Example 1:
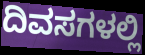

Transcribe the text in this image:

ದಿವಸಗಳಲ್ಲಿ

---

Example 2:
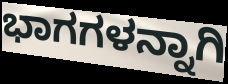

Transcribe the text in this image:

ಭಾಗಗಳನ್ನಾಗಿ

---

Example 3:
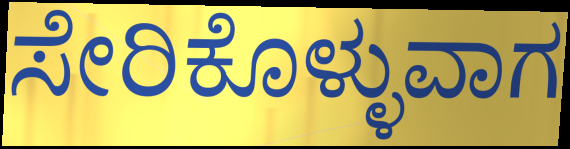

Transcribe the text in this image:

ಸೇರಿಕೊಳ್ಳುವಾಗ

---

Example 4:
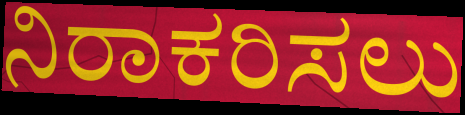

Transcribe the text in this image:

ನಿರಾಕರಿಸಲು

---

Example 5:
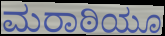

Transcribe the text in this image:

ಮರಾಠಿಯೂ